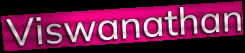
Viswanathan